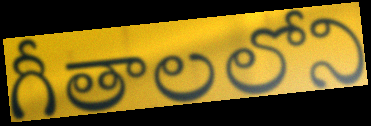
గీతాలలోని